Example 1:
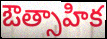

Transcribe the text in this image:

ఔత్సాహిక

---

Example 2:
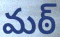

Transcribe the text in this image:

మఠ్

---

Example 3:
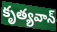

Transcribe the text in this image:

కృత్యవాన్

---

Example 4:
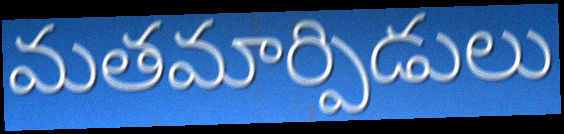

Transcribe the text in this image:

మతమార్పిడులు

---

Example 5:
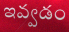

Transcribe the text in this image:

ఇవ్వడం